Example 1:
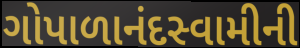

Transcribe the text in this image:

ગોપાળાનંદસ્વામીની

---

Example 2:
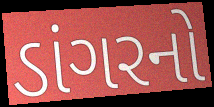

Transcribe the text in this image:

ડાંગરનો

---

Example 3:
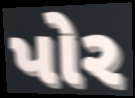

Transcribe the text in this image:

પોર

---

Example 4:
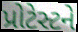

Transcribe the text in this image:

પ્રોટેસ્ટને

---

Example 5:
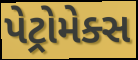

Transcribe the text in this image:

પેટ્રોમેક્સ